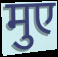
मुए